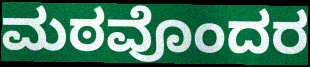
ಮಠವೊಂದರ